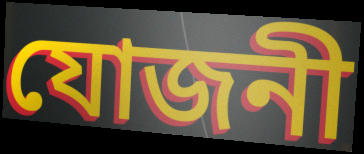
যোজনী